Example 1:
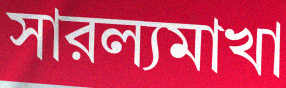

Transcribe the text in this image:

সারল্যমাখা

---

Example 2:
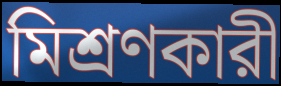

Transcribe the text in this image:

মিশ্রণকারী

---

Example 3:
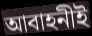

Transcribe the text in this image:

আবাহনীই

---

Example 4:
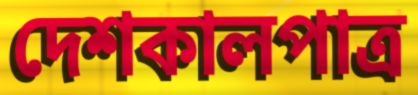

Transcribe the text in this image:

দেশকালপাত্র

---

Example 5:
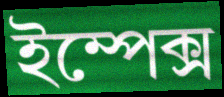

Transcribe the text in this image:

ইম্পেক্স